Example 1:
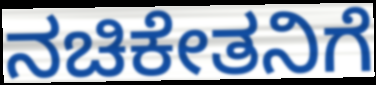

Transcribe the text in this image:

ನಚಿಕೇತನಿಗೆ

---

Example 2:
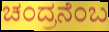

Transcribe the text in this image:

ಚಂದ್ರನೆಂಬ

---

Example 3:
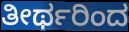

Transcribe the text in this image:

ತೀರ್ಥರಿಂದ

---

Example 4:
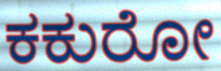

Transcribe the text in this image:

ಕಕುರೋ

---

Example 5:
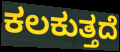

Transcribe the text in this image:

ಕಲಕುತ್ತದೆ